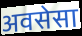
अवसेसा